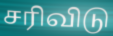
சரிவிடு